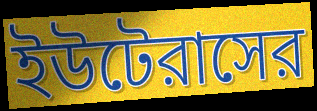
ইউটেরাসের